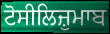
ਟੋਸੀਲਿਜ਼ੁਮਾਬ